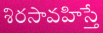
శిరసావహిస్తే